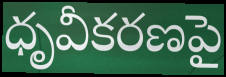
ధృవీకరణపై